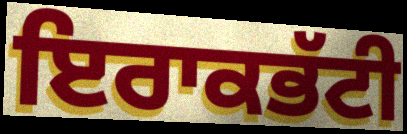
ਇਰਾਕਭੱਟੀ